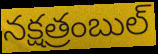
నక్షత్రంబుల్